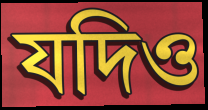
যদিও